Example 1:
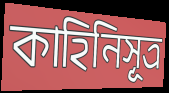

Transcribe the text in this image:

কাহিনিসূত্র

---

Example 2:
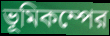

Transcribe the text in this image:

ভূমিকম্পের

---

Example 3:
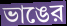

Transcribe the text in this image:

ভাঙের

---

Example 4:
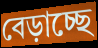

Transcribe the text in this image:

বেড়াচ্ছে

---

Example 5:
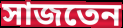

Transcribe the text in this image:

সাজতেন